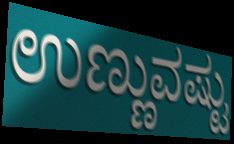
ಉಣ್ಣುವಷ್ಟು